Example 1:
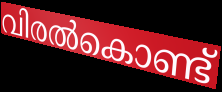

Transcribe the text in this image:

വിരൽകൊണ്ട്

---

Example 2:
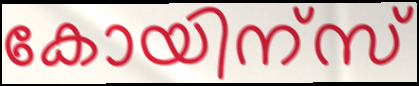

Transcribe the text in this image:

കോയിന്സ്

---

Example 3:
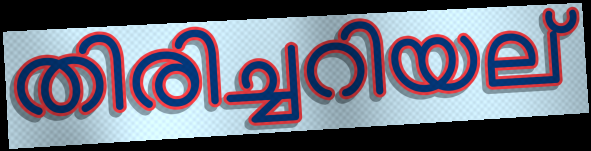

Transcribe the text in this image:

തിരിച്ചറിയല്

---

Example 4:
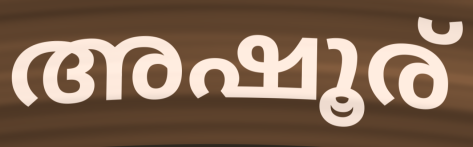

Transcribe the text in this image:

അഷൂര്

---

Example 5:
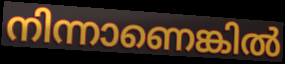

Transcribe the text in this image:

നിന്നാണെങ്കിൽ